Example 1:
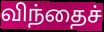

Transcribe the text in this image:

விந்தைச்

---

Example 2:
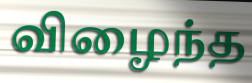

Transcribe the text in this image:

விழைந்த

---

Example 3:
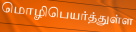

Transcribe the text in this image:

மொழிபெயர்த்துள்ள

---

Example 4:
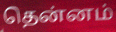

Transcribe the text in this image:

தென்னம்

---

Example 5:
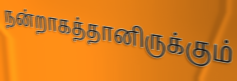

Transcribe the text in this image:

நன்றாகத்தானிருக்கும்